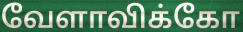
வேளாவிக்கோ